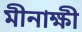
মীনাক্ষী